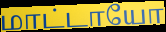
மாட்டாயோ